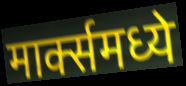
मार्क्समध्ये